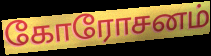
கோரோசனம்